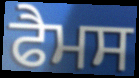
ਫੈਮਸ